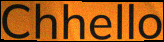
Chhello